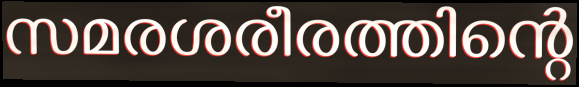
സമരശരീരത്തിന്റെ